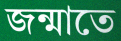
জন্মাতে